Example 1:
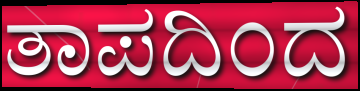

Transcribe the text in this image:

ತಾಪದಿಂದ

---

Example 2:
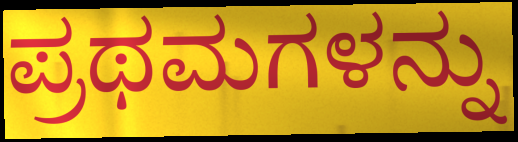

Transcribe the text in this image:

ಪ್ರಥಮಗಳನ್ನು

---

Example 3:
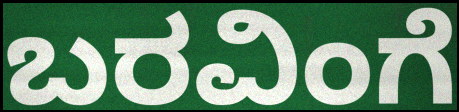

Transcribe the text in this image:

ಬರವಿಂಗೆ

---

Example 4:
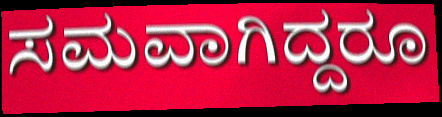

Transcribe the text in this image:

ಸಮವಾಗಿದ್ದರೂ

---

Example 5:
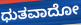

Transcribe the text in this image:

ಧುತವಾದೋ